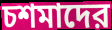
চশমাদের